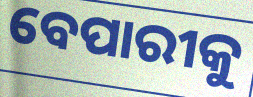
ବେପାରୀକୁ